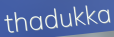
thadukka